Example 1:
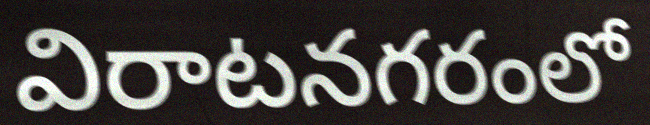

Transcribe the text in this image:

విరాటనగరంలో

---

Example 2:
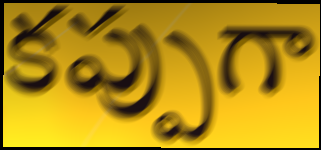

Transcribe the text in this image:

కప్పుగా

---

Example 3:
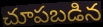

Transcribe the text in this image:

చూపబడిన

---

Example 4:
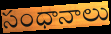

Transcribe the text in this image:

సంధానాలు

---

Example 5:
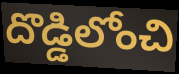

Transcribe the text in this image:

దొడ్డిలోంచి